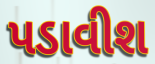
પડાવીશ